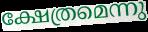
ക്ഷേത്രമെന്നു